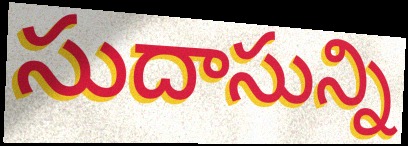
సుదాసున్ని